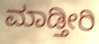
ಮಾಡ್ತೀರಿ